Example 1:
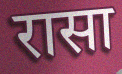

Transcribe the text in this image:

रासा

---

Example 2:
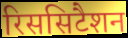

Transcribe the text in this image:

रिससिटैशन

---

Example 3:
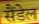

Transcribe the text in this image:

सैंडेल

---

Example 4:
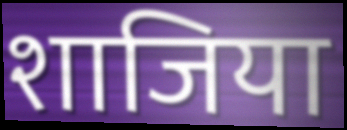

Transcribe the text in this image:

शाजिया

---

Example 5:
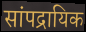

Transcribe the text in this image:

सांपद्रायिक